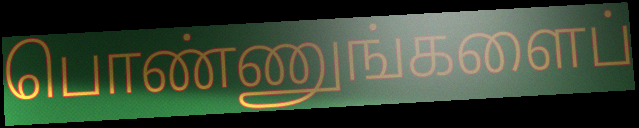
பொண்ணுங்களைப்